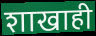
शाखाही